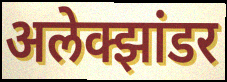
अलेक्झांडर